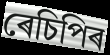
ৰেচিপিৰ